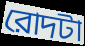
রোদটা